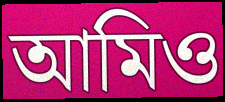
আমিও